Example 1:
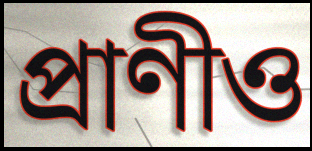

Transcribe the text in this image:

প্রাণীও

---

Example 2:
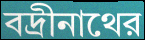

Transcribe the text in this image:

বদ্রীনাথের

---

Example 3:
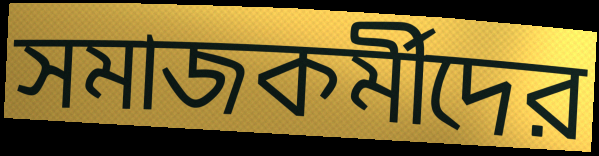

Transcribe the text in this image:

সমাজকর্মীদের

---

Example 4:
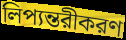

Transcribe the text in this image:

লিপ্যন্তরীকরণ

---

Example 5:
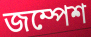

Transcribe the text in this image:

জম্পেশ